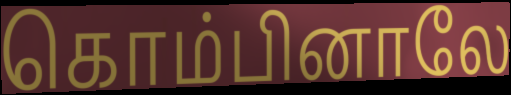
கொம்பினாலே